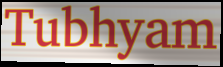
Tubhyam